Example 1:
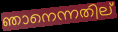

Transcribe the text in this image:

ഞാനെന്നതില്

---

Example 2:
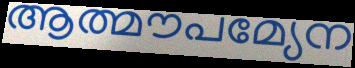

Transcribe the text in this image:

ആത്മൗപമ്യേന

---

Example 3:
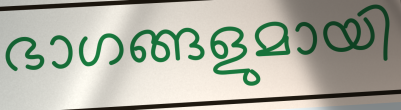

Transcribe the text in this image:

ഭാഗങ്ങളുമായി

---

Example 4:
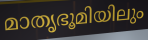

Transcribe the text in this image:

മാതൃഭൂമിയിലും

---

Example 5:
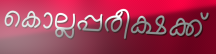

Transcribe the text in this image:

കൊല്ലപ്പരീക്ഷക്ക്